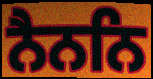
ਨੈਨਨਿ